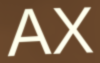
AX